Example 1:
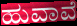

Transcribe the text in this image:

ಹುವಾವೆ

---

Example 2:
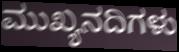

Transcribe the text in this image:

ಮುಖ್ಯನದಿಗಳು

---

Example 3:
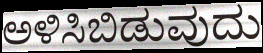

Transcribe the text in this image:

ಅಳಿಸಿಬಿಡುವುದು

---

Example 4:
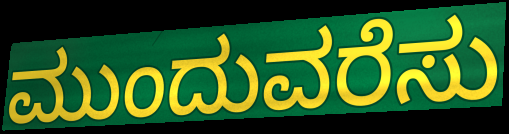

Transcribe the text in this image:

ಮುಂದುವರೆಸು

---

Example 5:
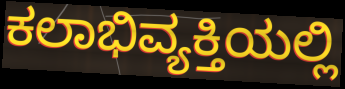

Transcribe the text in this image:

ಕಲಾಭಿವ್ಯಕ್ತಿಯಲ್ಲಿ